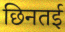
छिनतई